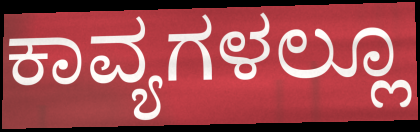
ಕಾವ್ಯಗಳಲ್ಲೂ